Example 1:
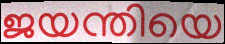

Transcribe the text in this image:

ജയന്തിയെ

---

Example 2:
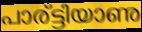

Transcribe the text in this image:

പാര്ട്ടിയാണു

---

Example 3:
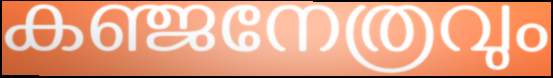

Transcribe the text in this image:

കഞ്ജനേത്രവും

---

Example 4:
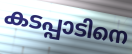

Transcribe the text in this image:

കടപ്പാടിനെ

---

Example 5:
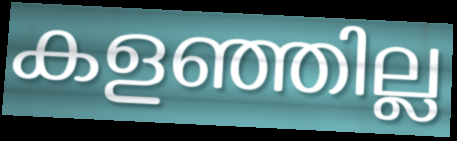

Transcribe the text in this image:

കളഞ്ഞില്ല